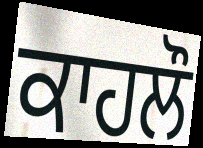
ਕਾਹਲੌ